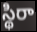
స్థిరా